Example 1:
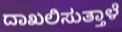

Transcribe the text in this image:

ದಾಖಲಿಸುತ್ತಾಳೆ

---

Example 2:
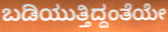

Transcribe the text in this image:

ಬಡಿಯುತ್ತಿದ್ದಂತೆಯೇ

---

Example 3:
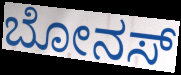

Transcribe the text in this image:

ಬೋನಸ್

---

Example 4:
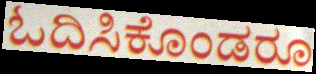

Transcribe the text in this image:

ಓದಿಸಿಕೊಂಡರೂ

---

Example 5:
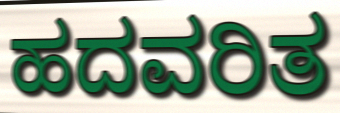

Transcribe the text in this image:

ಹದವರಿತ